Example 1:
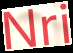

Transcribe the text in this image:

Nri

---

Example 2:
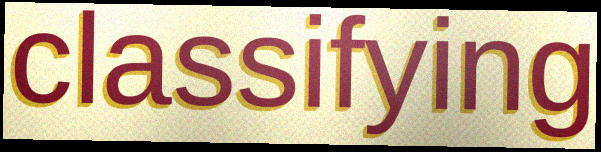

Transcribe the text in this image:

classifying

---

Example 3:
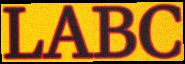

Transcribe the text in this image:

LABC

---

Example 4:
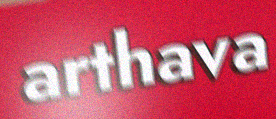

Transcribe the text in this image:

arthava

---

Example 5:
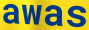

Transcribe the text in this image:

awas